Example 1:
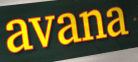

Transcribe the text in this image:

avana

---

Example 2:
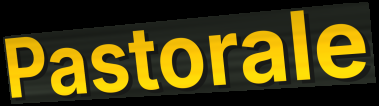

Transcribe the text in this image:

Pastorale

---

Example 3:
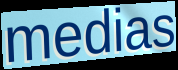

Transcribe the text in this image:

medias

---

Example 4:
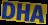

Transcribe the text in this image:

DHA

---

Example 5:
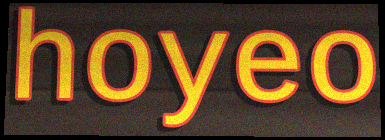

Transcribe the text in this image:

hoyeo